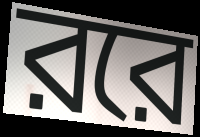
ররে